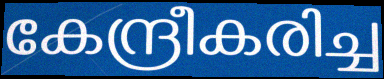
കേന്ദ്രീകരിച്ച